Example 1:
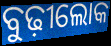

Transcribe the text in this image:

ବୁଢ଼ୀଲୋକ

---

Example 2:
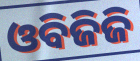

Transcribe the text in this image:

ଓବିଜିଜି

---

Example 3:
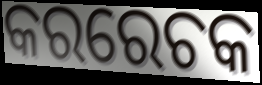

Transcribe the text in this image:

କରରେଚକ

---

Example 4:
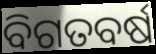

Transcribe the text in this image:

ବିଗତବର୍ଷ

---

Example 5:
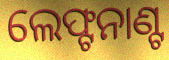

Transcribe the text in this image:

ଲେଫ୍ଟନାଣ୍ଟ